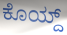
ಕೊಯ್ದ್